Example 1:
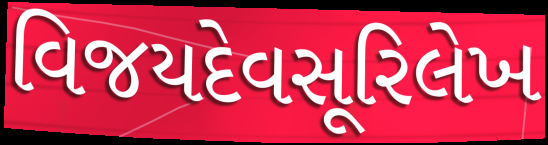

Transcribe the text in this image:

વિજયદેવસૂરિલેખ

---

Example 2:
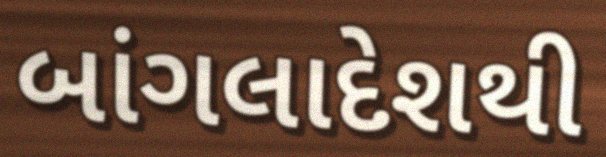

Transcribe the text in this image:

બાંગલાદેશથી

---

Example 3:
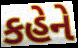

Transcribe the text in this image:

કહેને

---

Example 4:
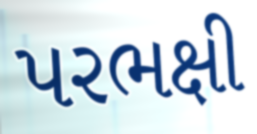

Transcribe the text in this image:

પરભક્ષી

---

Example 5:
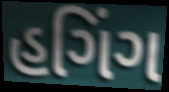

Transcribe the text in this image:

હગિંગ